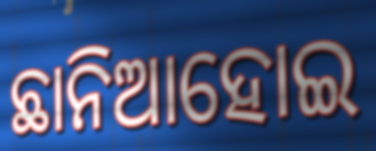
ଛାନିଆହୋଇ